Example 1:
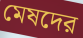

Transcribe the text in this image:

মেষদের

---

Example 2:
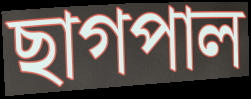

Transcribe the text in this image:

ছাগপাল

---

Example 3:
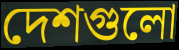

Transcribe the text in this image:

দেশগুলো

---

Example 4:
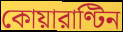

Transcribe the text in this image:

কোয়ারাণ্টিন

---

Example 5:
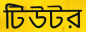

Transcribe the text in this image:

টিউটর